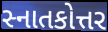
સ્નાતકોત્તર